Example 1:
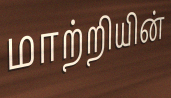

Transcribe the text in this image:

மாற்றியின்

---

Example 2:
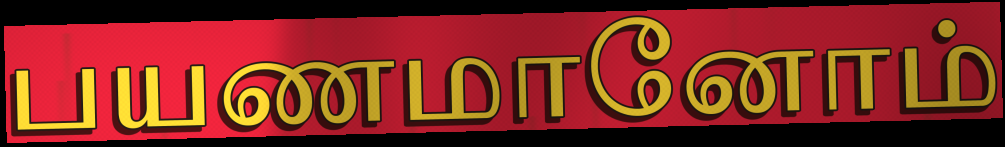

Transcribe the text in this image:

பயணமானோம்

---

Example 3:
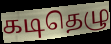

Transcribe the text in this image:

கடிதெழு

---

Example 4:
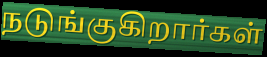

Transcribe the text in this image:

நடுங்குகிறார்கள்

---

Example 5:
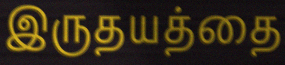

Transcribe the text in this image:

இருதயத்தை